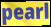
pearl